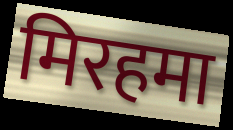
मिरहमा